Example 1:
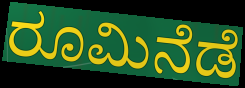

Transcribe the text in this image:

ರೂಮಿನೆಡೆ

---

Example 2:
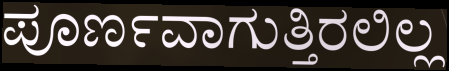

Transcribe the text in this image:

ಪೂರ್ಣವಾಗುತ್ತಿರಲಿಲ್ಲ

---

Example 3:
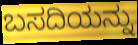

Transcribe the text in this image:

ಬಸದಿಯನ್ನು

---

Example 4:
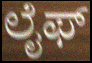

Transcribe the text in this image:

ಲೈಫ್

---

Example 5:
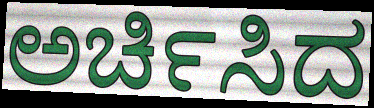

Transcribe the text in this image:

ಅರ್ಚಿಸಿದ